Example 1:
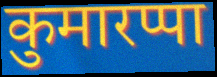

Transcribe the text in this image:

कुमारप्पा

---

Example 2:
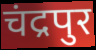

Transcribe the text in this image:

चंद्रपुर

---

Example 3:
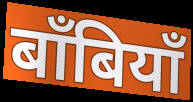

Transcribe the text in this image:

बाँबियाँ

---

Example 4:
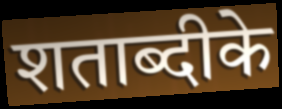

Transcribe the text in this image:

शताब्दीके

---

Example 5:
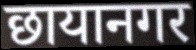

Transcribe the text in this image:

छायानगर